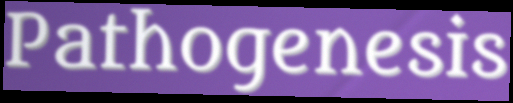
Pathogenesis